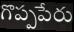
గొప్పపేరు